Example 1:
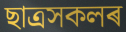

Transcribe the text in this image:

ছাত্ৰসকলৰ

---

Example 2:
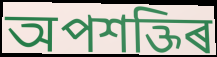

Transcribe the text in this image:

অপশক্তিৰ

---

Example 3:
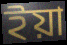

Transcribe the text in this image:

ইয়া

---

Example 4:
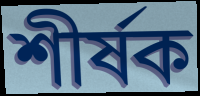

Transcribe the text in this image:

শীৰ্ষক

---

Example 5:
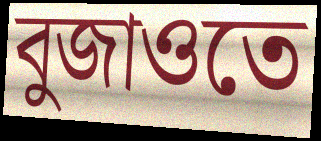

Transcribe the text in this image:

বুজাওতে